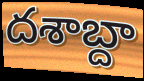
దశాబ్దా